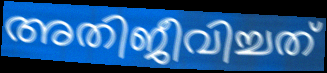
അതിജീവിച്ചത്